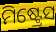
ମିଷ୍ଟ୍ରେସ